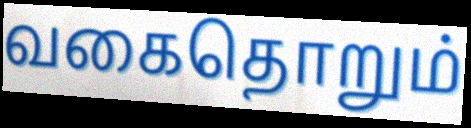
வகைதொறும்